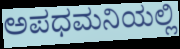
ಅಪಧಮನಿಯಲ್ಲಿ